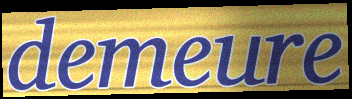
demeure